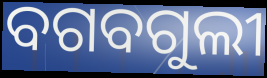
ବଗବଗୁଲୀ